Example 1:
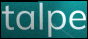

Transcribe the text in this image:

talpe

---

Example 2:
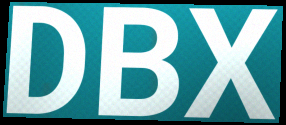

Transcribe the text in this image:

DBX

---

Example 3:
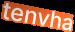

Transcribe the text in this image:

tenvha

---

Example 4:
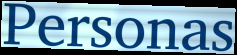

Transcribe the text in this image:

Personas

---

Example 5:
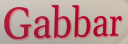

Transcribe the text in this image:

Gabbar